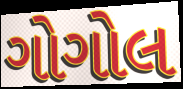
ગોગોલ